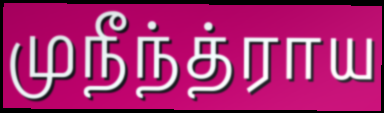
முநீந்த்ராய